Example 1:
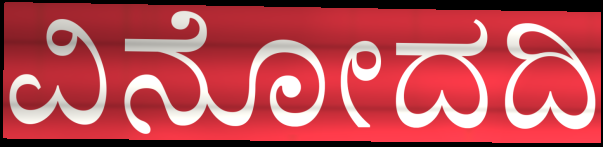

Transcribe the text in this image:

ವಿನೋದದಿ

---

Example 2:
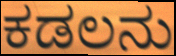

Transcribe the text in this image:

ಕಡಲನು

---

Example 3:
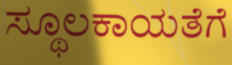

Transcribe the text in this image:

ಸ್ಥೂಲಕಾಯತೆಗೆ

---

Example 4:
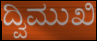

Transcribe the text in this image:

ದ್ವಿಮುಖಿ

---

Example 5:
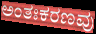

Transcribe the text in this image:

ಅಂತಃಕರಣವು